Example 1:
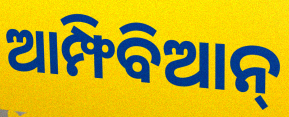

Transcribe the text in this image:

ଆମ୍ଫିବିଆନ୍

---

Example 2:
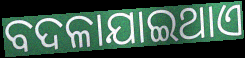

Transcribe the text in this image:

ବଦଳାଯାଇଥାଏ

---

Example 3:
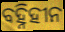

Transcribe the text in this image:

ବହ୍ନିହୀନ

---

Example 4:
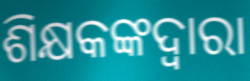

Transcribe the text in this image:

ଶିକ୍ଷକଙ୍କଦ୍ଵାରା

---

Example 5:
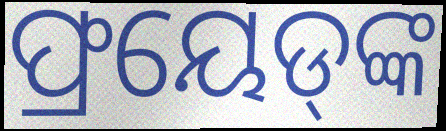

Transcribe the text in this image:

ଫ୍ରୟେଡ୍‍ଙ୍କ